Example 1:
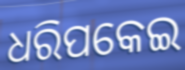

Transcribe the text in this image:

ଧରିପକେଇ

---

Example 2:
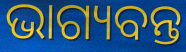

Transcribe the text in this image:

ଭାଗ୍ୟବନ୍ତ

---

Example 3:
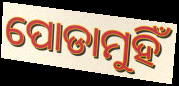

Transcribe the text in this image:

ପୋଡାମୁହିଁ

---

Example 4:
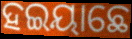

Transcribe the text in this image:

ହଇୟାଛେ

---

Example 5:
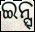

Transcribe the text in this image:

ଇନ୍ସ୍